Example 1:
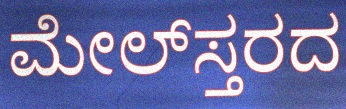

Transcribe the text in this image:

ಮೇಲ್‌ಸ್ತರದ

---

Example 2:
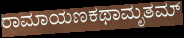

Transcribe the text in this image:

ರಾಮಾಯಣಕಥಾಮೃತಮ್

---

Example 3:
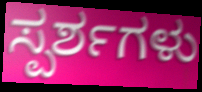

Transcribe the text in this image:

ಸ್ಪರ್ಶಗಳು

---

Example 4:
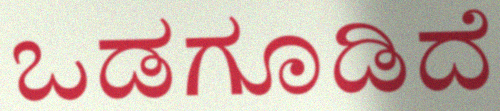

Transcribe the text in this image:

ಒಡಗೂಡಿದೆ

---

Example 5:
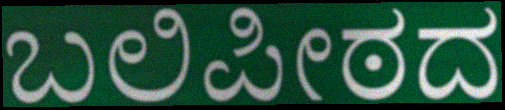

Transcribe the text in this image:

ಬಲಿಪೀಠದ